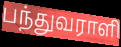
பந்துவராளி